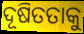
ଦୂଷିତତାକୁ